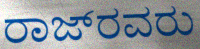
ರಾಜ್‌ರವರು